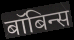
बॉबिन्स